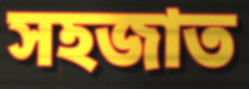
সহজাত